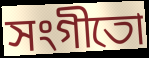
সংগীতো